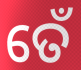
ତେଁ